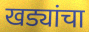
खड्यांचा